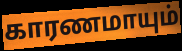
காரணமாயும்